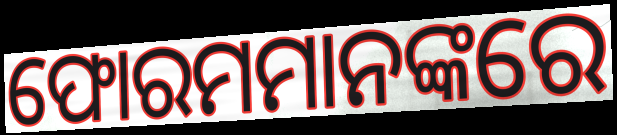
ଫୋରମମାନଙ୍କରେ